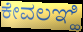
ಕೇವಲಞ್ಹಿ